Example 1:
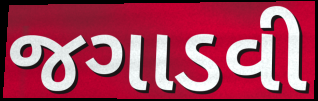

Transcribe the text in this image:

જગાડવી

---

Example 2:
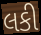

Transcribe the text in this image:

લકી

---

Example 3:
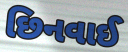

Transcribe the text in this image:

છિનવાઈ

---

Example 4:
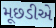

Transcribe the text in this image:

મૂછડીએ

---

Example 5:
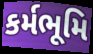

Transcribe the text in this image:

કર્મભૂમિ